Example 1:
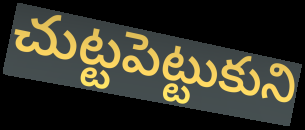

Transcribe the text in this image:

చుట్టపెట్టుకుని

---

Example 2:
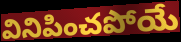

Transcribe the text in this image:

వినిపించపోయే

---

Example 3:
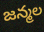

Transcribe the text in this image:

జన్మల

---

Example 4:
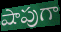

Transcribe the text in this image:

షాపుగా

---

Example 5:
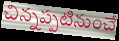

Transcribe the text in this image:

చిన్నప్పటినుంచే